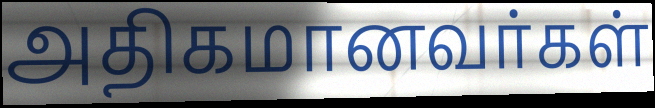
அதிகமானவர்கள்